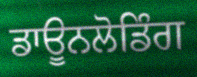
ਡਾਊਨਲੋਡਿੰਗ